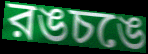
রঙচঙে